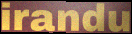
irandu